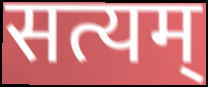
सत्यम्